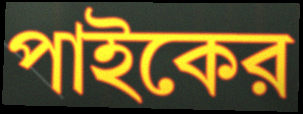
পাইকের